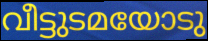
വീട്ടുടമയോടു